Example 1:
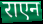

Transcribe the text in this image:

राएन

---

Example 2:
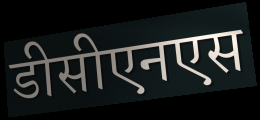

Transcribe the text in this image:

डीसीएनएस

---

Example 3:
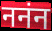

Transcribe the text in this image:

ननंन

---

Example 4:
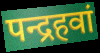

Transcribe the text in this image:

पन्द्रहवां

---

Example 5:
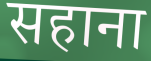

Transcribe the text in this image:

सहाना